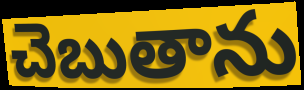
చెబుతాను